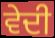
ਵੇਦੀ